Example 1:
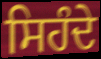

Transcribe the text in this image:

ਸਿਹੰਦੇ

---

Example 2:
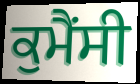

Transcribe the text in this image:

ਕੁਮੈਂਸੀ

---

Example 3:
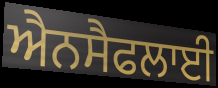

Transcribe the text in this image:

ਐਨਸੈਫਲਾਈ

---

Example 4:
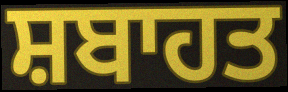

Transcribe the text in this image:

ਸ਼ਬਾਹਤ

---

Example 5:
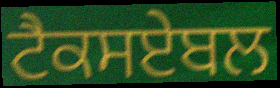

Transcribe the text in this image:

ਟੈਕਸਏਬਲ